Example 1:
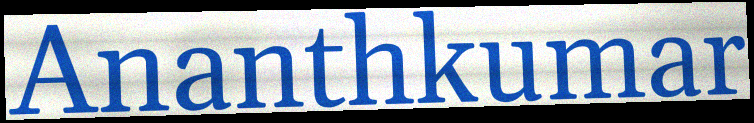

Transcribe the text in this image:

Ananthkumar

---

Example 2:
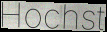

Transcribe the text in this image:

Hochst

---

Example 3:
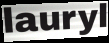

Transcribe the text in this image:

lauryl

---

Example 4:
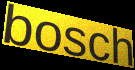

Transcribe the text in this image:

bosch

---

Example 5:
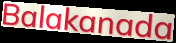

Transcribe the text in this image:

Balakanada